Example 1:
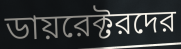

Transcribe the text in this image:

ডায়রেক্টরদের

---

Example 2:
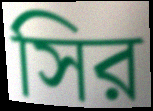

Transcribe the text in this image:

সির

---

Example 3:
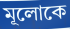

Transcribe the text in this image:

মূলোকে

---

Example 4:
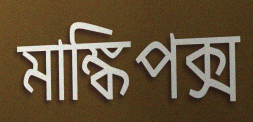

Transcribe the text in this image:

মাঙ্কিপক্স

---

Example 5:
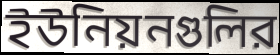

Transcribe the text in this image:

ইউনিয়নগুলির